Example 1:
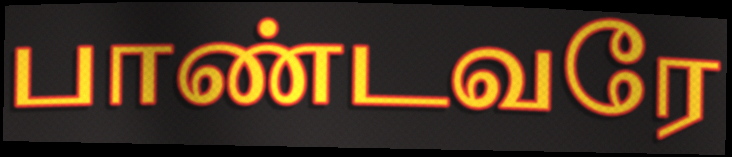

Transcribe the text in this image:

பாண்டவரே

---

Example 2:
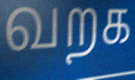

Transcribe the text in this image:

வறக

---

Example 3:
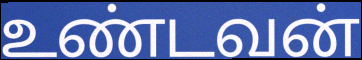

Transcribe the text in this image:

உண்டவன்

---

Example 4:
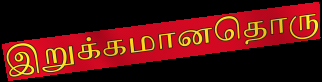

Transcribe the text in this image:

இறுக்கமானதொரு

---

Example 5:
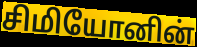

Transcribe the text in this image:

சிமியோனின்